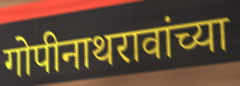
गोपीनाथरावांच्या